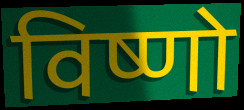
विष्णो